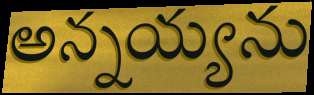
అన్నయ్యను